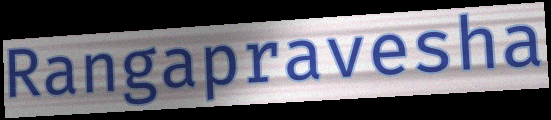
Rangapravesha